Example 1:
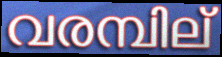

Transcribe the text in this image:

വരമ്പില്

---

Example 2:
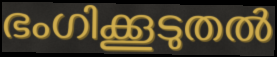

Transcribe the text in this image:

ഭംഗിക്കൂടുതൽ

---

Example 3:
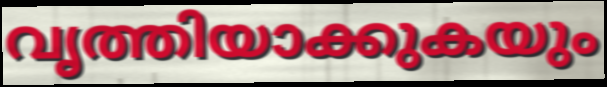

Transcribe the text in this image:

വൃത്തിയാക്കുകയും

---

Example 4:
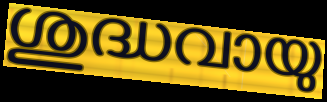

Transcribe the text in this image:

ശുദ്ധവായു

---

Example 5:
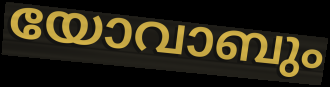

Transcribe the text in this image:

യോവാബും